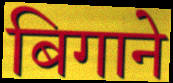
बिगाने